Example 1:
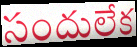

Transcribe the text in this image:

సందులేక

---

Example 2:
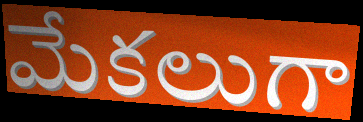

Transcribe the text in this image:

మేకలుగా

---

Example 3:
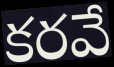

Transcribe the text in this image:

కరవే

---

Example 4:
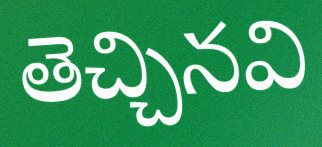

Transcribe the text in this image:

తెచ్చినవి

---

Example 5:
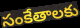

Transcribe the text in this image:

సంకేతాలకు